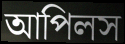
আপিলস